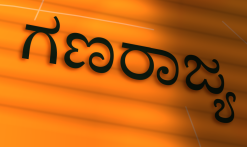
ಗಣರಾಜ್ಯ